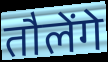
तौलेंगे